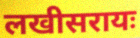
लखीसरायः